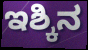
ಇಶ್ಕಿನ